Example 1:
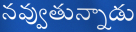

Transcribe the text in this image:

నవ్వుతున్నాడు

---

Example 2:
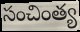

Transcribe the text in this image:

సంచింత్య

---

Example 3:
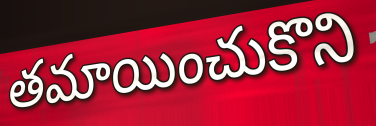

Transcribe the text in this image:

తమాయించుకొని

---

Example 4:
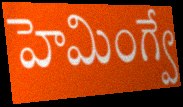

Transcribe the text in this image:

హెమింగ్వే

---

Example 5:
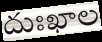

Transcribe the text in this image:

దుఃఖాల